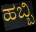
ಹಬ್ಬಿ